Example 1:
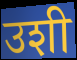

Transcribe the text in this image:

उशी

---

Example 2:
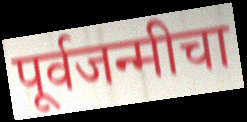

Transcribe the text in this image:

पूर्वजन्मीचा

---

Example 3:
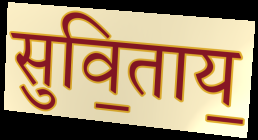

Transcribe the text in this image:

सुवि॒ताय॒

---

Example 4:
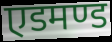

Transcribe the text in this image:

एडमण्ड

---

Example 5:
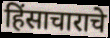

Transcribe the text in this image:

हिंसाचाराचे